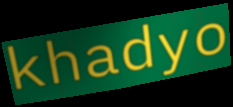
khadyo